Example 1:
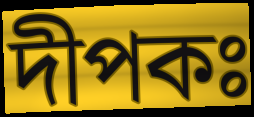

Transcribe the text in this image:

দীপকঃ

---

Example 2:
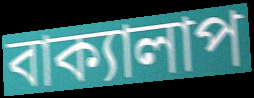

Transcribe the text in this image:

বাক্যালাপ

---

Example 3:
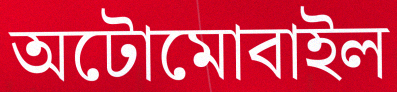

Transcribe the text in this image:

অটোমোবাইল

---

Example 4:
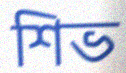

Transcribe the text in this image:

শিভ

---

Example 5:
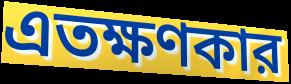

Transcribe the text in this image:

এতক্ষণকার